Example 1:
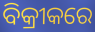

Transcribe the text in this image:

ବିକ୍ରୀକରେ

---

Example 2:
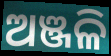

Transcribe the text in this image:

ଅଞ୍ଜଳି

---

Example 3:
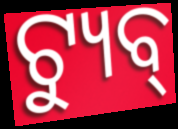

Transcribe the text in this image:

ଟ୍ୟୁବ୍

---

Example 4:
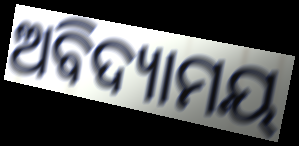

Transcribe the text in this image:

ଅବିଦ୍ୟାମୟ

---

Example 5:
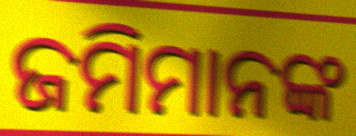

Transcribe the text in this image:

ଜମିମାନଙ୍କ